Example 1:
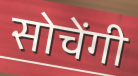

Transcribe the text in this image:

सोचेंगी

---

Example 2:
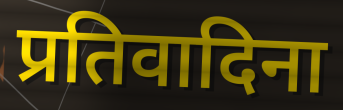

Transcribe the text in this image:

प्रतिवादिना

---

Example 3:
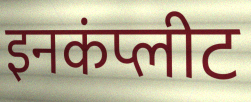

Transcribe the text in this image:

इनकंप्लीट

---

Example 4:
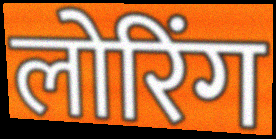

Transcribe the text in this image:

लोरिंग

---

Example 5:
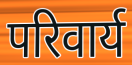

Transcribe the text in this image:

परिवार्य